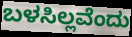
ಬಳಸಿಲ್ಲವೆಂದು